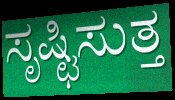
ಸೃಷ್ಟಿಸುತ್ತ